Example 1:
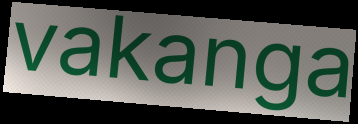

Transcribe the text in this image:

vakanga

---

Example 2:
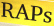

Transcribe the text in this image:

RAPs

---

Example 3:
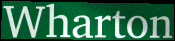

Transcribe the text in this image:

Wharton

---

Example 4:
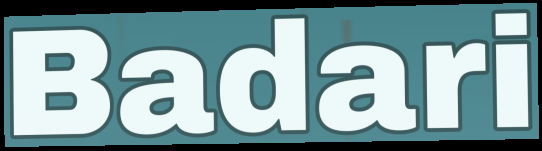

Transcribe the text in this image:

Badari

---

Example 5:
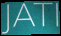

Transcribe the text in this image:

JATI